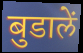
बुडालें